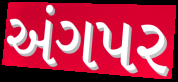
અંગપર